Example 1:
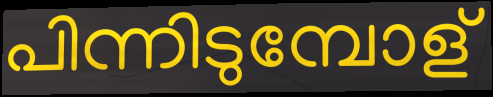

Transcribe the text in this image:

പിന്നിടുമ്പോള്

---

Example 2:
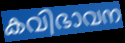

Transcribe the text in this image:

കവിഭാവന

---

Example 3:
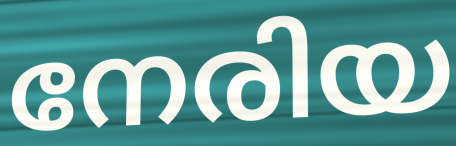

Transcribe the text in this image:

നേരിയ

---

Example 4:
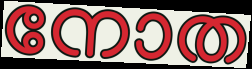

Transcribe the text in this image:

നോത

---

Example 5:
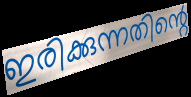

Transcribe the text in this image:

ഇരിക്കുന്നതിന്റെ